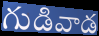
గుడివాడ